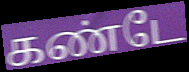
கண்டே